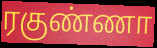
ரகுண்ணா